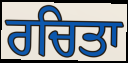
ਰਚਿਤਾ